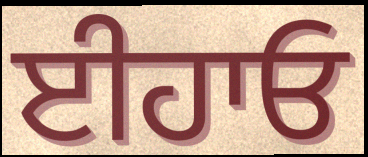
ਈਹਾਓ